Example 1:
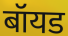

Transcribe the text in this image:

बॉयड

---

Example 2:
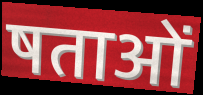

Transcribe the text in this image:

षताओं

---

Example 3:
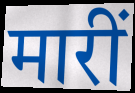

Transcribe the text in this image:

मारीं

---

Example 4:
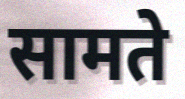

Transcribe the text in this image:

सामते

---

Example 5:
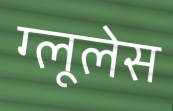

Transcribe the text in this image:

ग्लूलेस